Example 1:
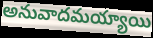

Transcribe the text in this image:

అనువాదమయ్యాయి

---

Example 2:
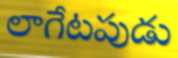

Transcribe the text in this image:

లాగేటపుడు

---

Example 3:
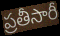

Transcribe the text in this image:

ప్రతీసారీ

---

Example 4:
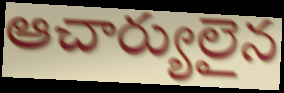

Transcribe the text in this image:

ఆచార్యులైన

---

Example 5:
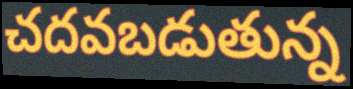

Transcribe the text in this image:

చదవబడుతున్న